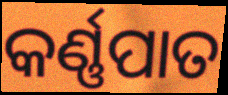
କର୍ଣ୍ଣପାତ